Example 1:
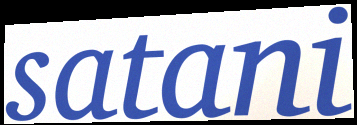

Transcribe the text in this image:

satani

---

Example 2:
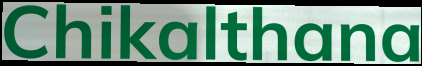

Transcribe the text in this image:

Chikalthana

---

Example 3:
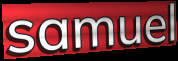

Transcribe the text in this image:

samuel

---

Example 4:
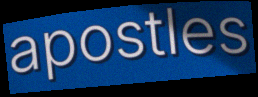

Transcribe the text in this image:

apostles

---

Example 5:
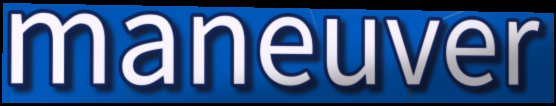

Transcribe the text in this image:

maneuver